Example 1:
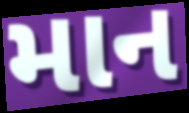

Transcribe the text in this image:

માન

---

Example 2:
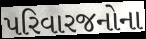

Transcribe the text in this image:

પરિવારજનોના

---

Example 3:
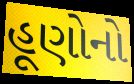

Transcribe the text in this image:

હૂણોનો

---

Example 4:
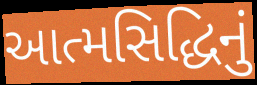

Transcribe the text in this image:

આત્મસિદ્ધિનું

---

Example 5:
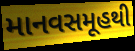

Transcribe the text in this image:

માનવસમૂહથી